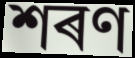
শৰণ